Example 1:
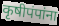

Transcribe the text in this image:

कृषीपंपांना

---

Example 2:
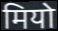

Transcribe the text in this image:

मियो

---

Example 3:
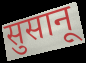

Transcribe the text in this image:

सुसानू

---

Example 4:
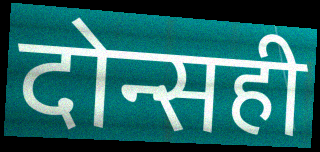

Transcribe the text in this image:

दोन्सही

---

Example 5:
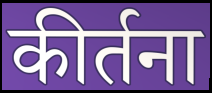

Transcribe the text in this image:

कीर्तना